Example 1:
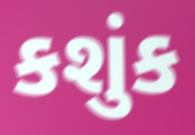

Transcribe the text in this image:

કશુંક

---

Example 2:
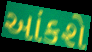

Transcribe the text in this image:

આંકશે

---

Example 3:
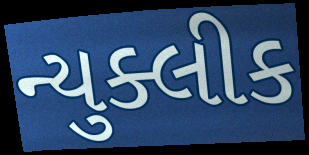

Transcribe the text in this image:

ન્યુક્લીક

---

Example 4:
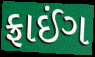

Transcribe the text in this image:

ફ્રાઈંગ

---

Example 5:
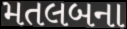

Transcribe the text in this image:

મતલબના